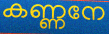
കണ്ണനേ